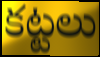
కట్టలు